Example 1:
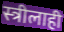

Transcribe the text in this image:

स्त्रीलाही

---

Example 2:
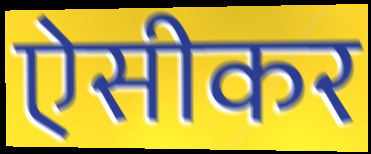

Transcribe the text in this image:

ऐसीकर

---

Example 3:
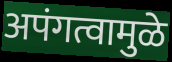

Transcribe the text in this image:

अपंगत्वामुळे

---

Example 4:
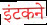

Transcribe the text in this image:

इंटकने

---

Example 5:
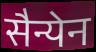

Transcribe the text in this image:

सैन्येन